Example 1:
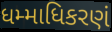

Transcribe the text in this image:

ધમ્માધિકરણં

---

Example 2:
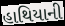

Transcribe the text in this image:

હાથિયાની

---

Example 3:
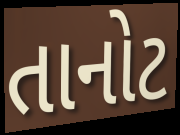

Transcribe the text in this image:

તાનોટ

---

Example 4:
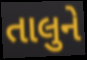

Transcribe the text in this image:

તાલુને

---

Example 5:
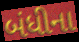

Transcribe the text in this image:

બંધીના